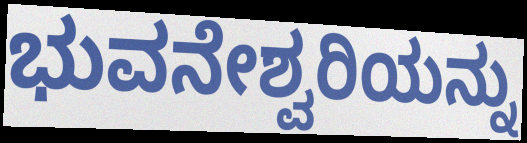
ಭುವನೇಶ್ವರಿಯನ್ನು